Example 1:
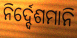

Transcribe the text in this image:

ନିର୍ଦ୍ଦେଶମାନି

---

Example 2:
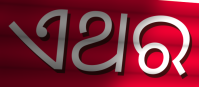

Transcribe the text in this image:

ଏଥର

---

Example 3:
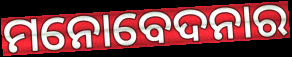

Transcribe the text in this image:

ମନୋବେଦନାର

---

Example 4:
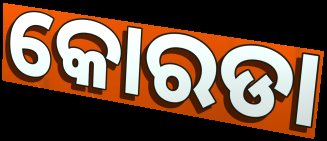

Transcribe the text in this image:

କୋରଡା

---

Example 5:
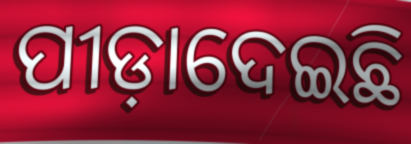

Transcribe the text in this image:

ପୀଡ଼ାଦେଇଛି